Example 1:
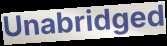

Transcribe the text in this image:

Unabridged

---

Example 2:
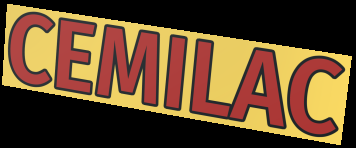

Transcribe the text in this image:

CEMILAC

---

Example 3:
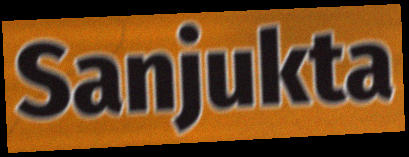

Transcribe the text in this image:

Sanjukta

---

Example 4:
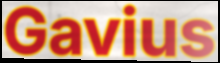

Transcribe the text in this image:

Gavius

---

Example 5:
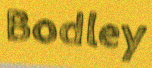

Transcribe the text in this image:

Bodley